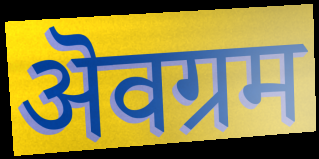
ऄवग्रम